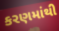
કરણમાંથી